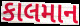
કાલમાન